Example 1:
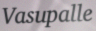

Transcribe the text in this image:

Vasupalle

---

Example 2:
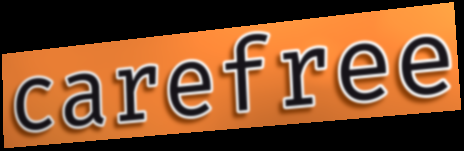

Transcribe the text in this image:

carefree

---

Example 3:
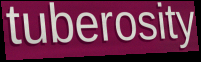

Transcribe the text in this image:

tuberosity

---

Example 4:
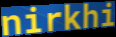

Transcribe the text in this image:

nirkhi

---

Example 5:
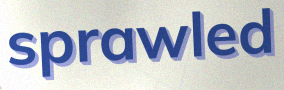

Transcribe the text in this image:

sprawled